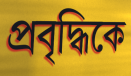
প্রবৃদ্ধিকে